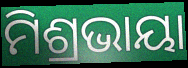
ମିଶ୍ରଭାୟା